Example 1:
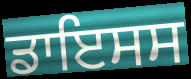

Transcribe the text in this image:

ਡਾਇਸਸ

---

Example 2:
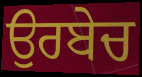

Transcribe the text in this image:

ਉਰਬੇਚ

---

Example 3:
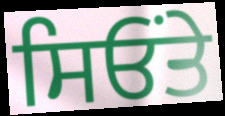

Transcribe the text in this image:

ਸਿਓਂਤੇ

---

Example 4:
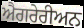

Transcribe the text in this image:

ਐਗਰੇਰੀਅਨ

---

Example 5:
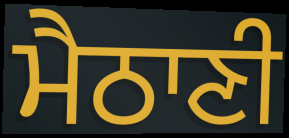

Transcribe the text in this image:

ਮੈਠਾਣੀ